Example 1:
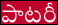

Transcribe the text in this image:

పాటరీ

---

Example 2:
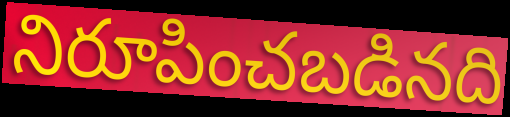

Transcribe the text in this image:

నిరూపించబడినది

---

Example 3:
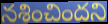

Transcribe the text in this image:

నశించిందని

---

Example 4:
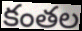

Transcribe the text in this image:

కంతల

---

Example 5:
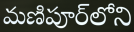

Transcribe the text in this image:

మణిపూర్‌లోని